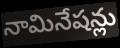
నామినేషన్లు